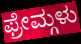
ಫ್ರೇಮ್ಗಳು